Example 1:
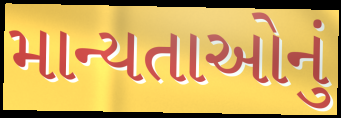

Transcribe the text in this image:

માન્યતાઓનું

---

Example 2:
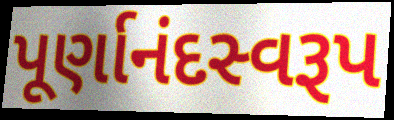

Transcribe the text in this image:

પૂર્ણાનંદસ્વરૂપ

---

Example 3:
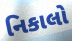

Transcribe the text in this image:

નિકાલો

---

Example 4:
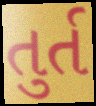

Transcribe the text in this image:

તુર્ત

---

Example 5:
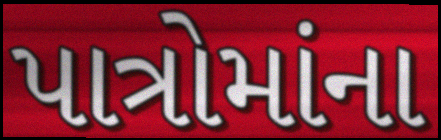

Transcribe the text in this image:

પાત્રોમાંના